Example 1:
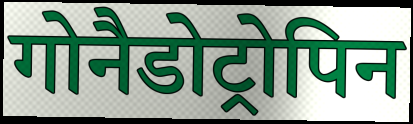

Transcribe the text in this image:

गोनैडोट्रोपिन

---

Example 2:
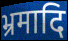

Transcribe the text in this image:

भ्रमादि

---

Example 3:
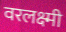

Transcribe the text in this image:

वरलक्ष्‍मी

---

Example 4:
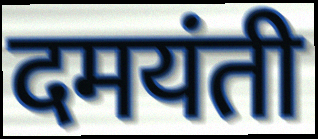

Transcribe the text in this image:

दमयंती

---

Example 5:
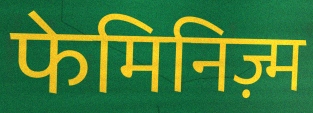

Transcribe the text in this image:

फेमिनिज़्म